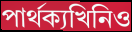
পাৰ্থক্যখিনিও